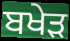
ਬਖੇੜ